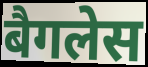
बैगलेस